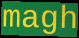
magh